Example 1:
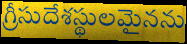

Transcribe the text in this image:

గ్రీసుదేశస్థులమైనను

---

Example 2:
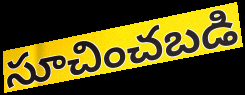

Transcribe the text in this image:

సూచించబడి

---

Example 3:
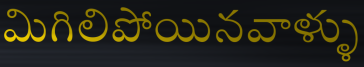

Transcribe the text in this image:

మిగిలిపోయినవాళ్ళు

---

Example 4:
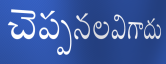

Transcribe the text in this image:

చెప్పనలవిగాదు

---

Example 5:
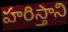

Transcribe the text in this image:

హరిస్తాని